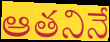
ఆతనినే